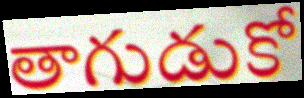
తాగుడుకో